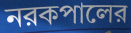
নরকপালের